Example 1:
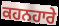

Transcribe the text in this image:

ਕਹਨਹਾਰੇ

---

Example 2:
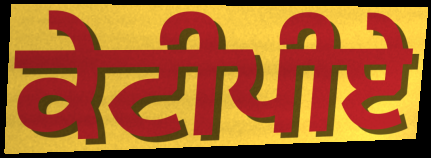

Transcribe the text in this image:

ਕੇਟੀਪੀਏ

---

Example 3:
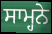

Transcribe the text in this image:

ਸਾਮ੍ਹਨੇ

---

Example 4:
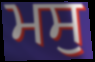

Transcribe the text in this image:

ਮਸੁ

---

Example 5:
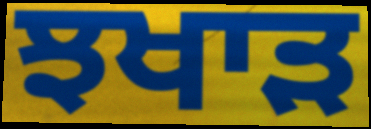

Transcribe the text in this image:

ਝਖਾੜ